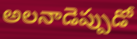
అలనాడెప్పుడో